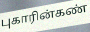
புகாரின்கண்